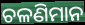
ଚଳଣିମାନ